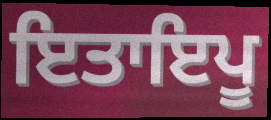
ਇਤਾਇਪੂ